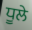
ਧੂਲੇ